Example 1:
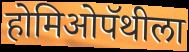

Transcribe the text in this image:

होमिओपॅथीला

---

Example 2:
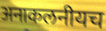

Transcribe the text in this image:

अनाकलनीयच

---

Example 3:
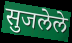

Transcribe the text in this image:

सुजलेले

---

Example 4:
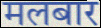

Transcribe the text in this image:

मलबार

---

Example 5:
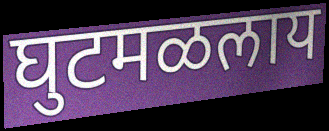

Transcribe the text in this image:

घुटमळलाय